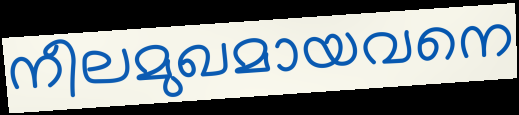
നീലമുഖമായവനെ